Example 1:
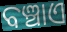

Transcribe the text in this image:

ବଞ୍ଚାଏ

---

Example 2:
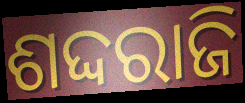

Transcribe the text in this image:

ଶଦ୍ଦରାଜି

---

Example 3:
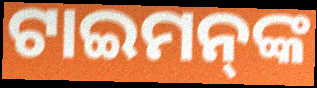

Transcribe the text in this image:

ଟାଇମନ୍‌ଙ୍କ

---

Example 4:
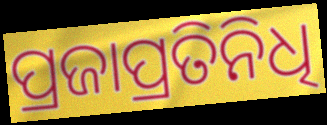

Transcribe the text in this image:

ପ୍ରଜାପ୍ରତିନିଧି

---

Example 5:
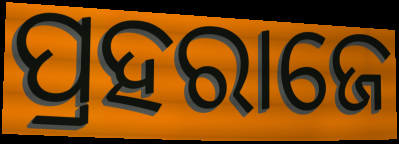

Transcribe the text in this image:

ପ୍ରହରାଜେ